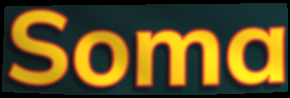
Soma